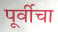
पूर्वीचा